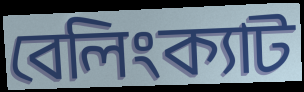
বেলিংক্যাট